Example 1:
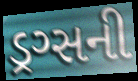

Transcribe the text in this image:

ડ્રગ્સની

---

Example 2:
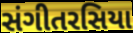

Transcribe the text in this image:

સંગીતરસિયા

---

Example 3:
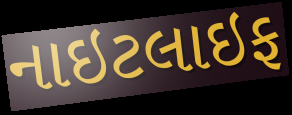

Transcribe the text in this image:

નાઇટલાઇફ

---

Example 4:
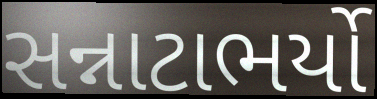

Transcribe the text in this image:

સન્નાટાભર્યો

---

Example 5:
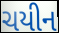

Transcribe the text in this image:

ચયીન